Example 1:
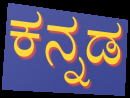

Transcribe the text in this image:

ಕನ್ನಡ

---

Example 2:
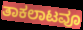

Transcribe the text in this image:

ತಾಕಲಾಟವೂ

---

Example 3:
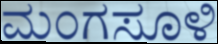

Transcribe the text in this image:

ಮಂಗಸೂಳಿ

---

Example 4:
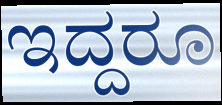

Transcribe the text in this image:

ಇದ್ದರೂ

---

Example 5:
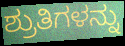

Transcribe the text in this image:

ಶ್ರುತಿಗಳನ್ನು